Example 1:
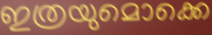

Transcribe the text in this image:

ഇത്രയുമൊക്കെ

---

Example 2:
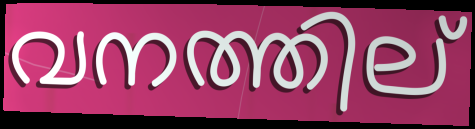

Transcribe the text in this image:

വനത്തില്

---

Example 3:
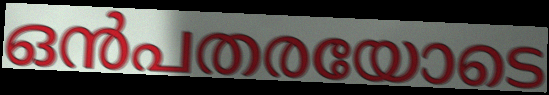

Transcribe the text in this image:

ഒൻപതരയോടെ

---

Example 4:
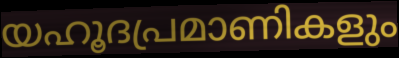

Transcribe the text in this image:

യഹൂദപ്രമാണികളും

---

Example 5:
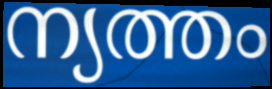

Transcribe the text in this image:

ന്യത്തം